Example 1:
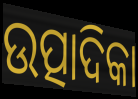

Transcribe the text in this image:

ଉତ୍ପାଦିକା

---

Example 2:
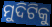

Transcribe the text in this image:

ମୁଦିଟିକୁ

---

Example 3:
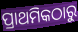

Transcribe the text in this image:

ପ୍ରାଥମିକଠାରୁ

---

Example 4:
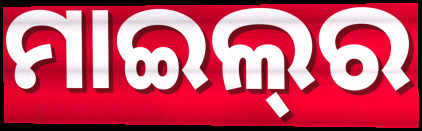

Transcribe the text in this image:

ମାଇଲ୍‍ର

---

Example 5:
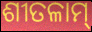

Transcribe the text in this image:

ଶୀତଳାମ୍